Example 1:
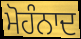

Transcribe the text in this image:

ਮੋਹੰਨਾਦ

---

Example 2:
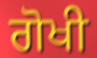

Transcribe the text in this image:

ਗੋਖੀ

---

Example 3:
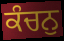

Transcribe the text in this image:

ਕੰਚਨੁ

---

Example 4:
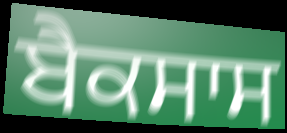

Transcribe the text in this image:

ਬੈਕਸਾਸ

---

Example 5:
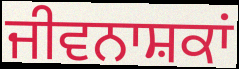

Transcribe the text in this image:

ਜੀਵਨਾਸ਼ਕਾਂ